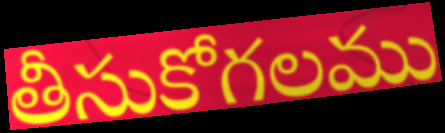
తీసుకోగలము